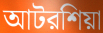
আটরশিয়া